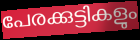
പേരക്കുട്ടികളും